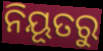
ନିୟୂତରୁ